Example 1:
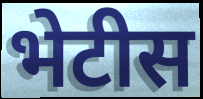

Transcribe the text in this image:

भेटीस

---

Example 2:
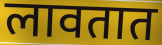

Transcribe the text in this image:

लावतात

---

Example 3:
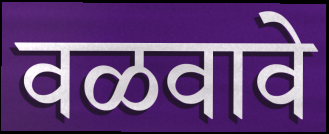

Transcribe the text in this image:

वळवावे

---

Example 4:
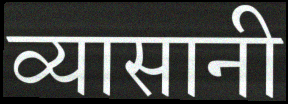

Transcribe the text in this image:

व्यासानी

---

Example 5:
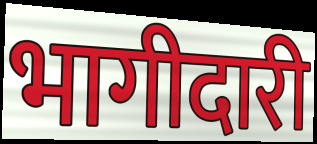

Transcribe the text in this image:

भागीदारी